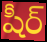
షీర్